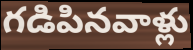
గడిపినవాళ్లు